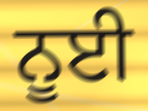
ਨੂਈ